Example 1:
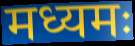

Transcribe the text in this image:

मध्यमः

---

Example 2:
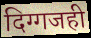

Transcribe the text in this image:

दिग्गजही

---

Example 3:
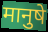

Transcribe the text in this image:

मानुषे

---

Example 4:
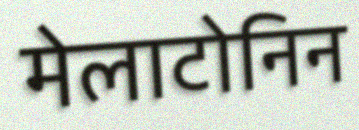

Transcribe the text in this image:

मेलाटोनिन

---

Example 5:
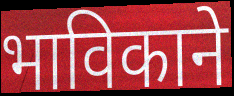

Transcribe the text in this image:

भाविकाने